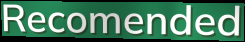
Recomended